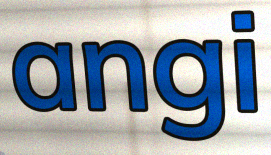
angi